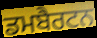
ਡਮਬੈਰਟਨ